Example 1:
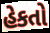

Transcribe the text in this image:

હેકતો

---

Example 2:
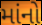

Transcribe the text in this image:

માંનો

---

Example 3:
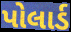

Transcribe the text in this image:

પોલાર્ડ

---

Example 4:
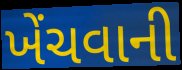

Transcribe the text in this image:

ખેંચવાની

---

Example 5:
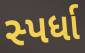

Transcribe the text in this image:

સ્પર્ધા